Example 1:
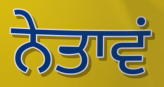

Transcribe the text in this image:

ਨੇਤਾਵਂ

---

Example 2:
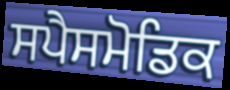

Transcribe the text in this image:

ਸਪੈਸਮੋਡਿਕ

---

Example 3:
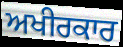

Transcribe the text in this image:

ਅਖੀਰਕਾਰ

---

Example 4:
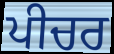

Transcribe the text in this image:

ਪੀਚਰ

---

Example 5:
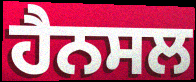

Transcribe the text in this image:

ਹੈਨਸਲ